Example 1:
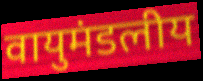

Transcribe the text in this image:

वायुमंडलीय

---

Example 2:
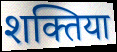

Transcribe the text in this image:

शक्तिया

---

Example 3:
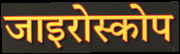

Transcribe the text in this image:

जाइरोस्कोप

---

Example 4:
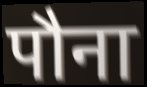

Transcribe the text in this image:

पौना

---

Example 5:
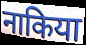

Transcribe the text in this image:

नाकिया